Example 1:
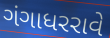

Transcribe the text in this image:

ગંગાધરરાવે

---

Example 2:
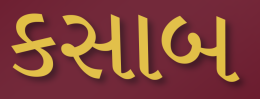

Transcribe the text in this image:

કસાબ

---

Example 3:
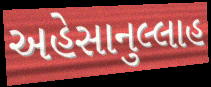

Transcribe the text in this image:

અહેસાનુલ્લાહ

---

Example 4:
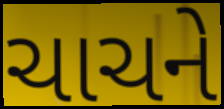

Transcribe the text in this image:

ચાચને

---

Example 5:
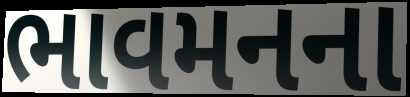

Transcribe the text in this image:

ભાવમનના